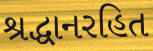
શ્રદ્ધાનરહિત